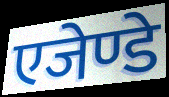
एजेण्डे